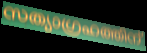
സത്യാഗ്രഹത്തിന്